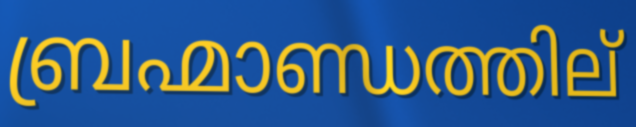
ബ്രഹ്മാണ്ഡത്തില്